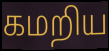
கமறிய